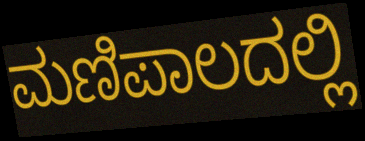
ಮಣಿಪಾಲದಲ್ಲಿ